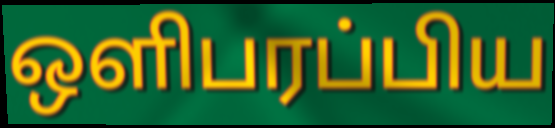
ஒளிபரப்பிய